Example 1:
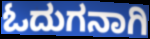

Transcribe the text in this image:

ಓದುಗನಾಗಿ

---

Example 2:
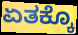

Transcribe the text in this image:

ಏತಕ್ಕೊ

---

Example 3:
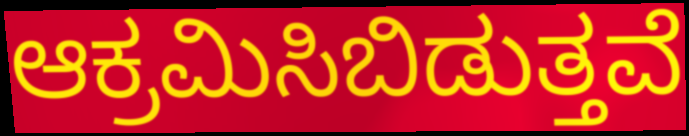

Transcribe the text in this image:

ಆಕ್ರಮಿಸಿಬಿಡುತ್ತವೆ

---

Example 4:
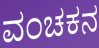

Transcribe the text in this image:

ವಂಚಕನ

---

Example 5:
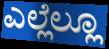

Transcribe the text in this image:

ಎಲ್ಲೆಲ್ಲೂ